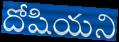
దోషియని